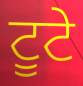
ਟੂਟੇ